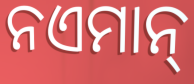
ନଏମାନ୍